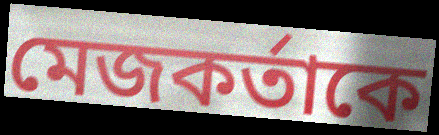
মেজকর্তাকে